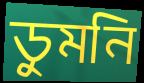
ডুমনি